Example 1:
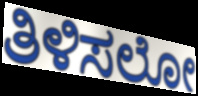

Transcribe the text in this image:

ತಿಳಿಸಲೋ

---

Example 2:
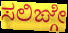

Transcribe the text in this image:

ಸಲಿಙ್ಗೇ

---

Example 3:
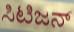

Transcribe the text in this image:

ಸಿಟಿಜನ್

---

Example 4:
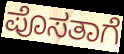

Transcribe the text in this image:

ಪೊಸತಾಗೆ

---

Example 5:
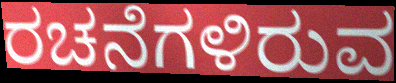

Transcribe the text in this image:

ರಚನೆಗಳಿರುವ